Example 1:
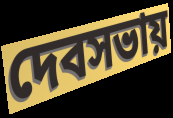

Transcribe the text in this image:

দেবসভায়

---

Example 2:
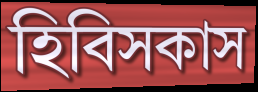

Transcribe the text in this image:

হিবিসকাস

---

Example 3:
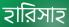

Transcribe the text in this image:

হারিসাহ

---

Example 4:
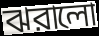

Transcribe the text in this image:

ঝরালো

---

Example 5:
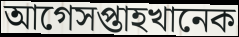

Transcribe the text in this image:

আগেসপ্তাহখানেক